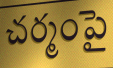
చర్మంపై